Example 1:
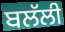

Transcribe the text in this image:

ਬਲੱਲੀ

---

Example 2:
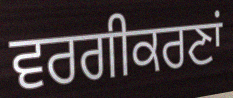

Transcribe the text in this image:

ਵਰਗੀਕਰਣਾਂ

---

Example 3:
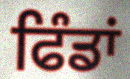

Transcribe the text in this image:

ਫਿੰਡਾਂ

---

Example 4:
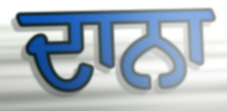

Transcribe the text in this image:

ਦਾਨਾ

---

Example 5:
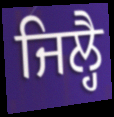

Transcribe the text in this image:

ਜਿਲ੍ਹੈ